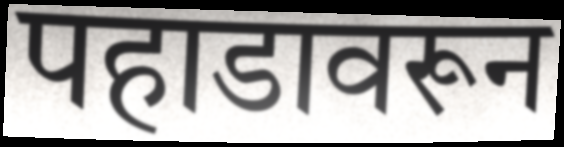
पहाडावरून